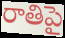
రాతిపై